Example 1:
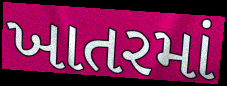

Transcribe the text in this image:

ખાતરમાં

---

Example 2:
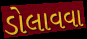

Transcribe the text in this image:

ડોલાવવા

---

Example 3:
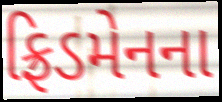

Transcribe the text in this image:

ફ્રિડમેનના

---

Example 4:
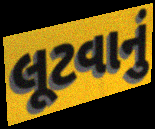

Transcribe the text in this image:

લૂટવાનું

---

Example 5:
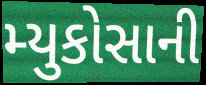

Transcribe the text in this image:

મ્યુકોસાની